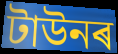
টাউনৰ